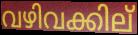
വഴിവക്കില്